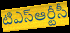
టిఎస్ఆర్టీసీ